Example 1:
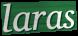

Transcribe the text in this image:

laras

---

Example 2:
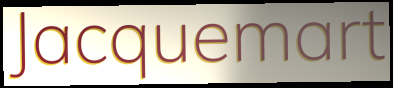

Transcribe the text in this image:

Jacquemart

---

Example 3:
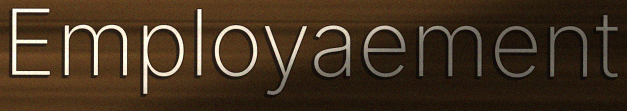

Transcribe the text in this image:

Employaement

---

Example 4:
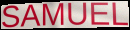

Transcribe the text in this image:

SAMUEL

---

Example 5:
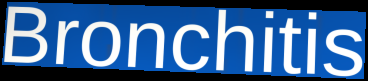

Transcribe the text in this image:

Bronchitis